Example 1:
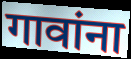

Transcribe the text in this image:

गावांना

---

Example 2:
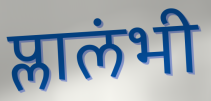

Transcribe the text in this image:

प्लालंभी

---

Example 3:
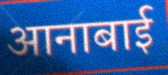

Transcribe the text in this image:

आनाबाई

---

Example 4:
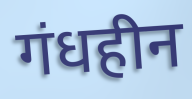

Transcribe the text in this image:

गंधहीन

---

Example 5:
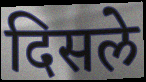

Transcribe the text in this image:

दिसले